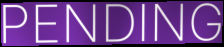
PENDING